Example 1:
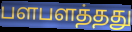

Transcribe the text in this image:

பளபளத்தது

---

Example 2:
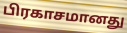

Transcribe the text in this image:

பிரகாசமானது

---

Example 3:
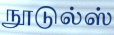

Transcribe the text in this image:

நூடுல்ஸ்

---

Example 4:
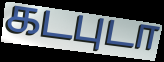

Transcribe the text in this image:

கடபுடா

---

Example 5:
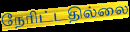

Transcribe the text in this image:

நேரிட்டதில்லை